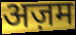
अज़म